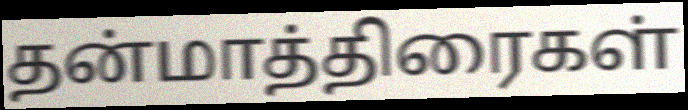
தன்மாத்திரைகள்